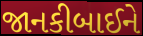
જાનકીબાઈને